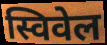
स्विवेल